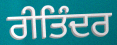
ਰੀਤਿੰਦਰ